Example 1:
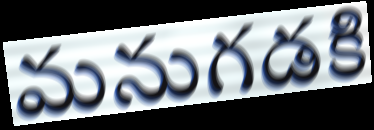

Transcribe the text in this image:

మనుగడకి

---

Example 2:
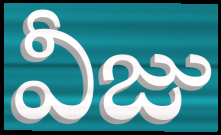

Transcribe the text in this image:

వీజు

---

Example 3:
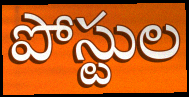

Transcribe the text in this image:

పోస్టుల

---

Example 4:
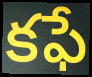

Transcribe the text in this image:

కఫే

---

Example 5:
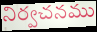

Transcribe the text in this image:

నిర్వచనము